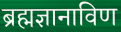
ब्रह्मज्ञानाविण